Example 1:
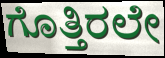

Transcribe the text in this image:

ಗೊತ್ತಿರಲೇ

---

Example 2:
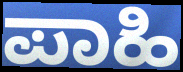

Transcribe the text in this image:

ಪಾಹಿ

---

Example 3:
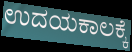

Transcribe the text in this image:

ಉದಯಕಾಲಕ್ಕೆ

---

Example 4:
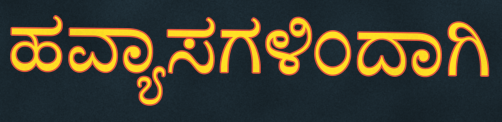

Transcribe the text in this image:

ಹವ್ಯಾಸಗಳಿಂದಾಗಿ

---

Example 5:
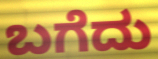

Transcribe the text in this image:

ಬಗೆದು